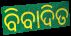
ବିବାଦିତ